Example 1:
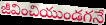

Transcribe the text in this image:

జీవించియుండగనే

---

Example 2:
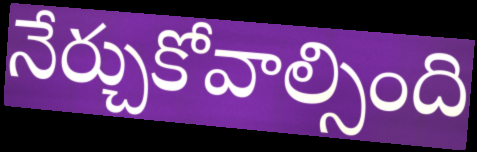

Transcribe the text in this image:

నేర్చుకోవాల్సింది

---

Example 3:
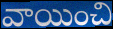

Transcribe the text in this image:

వాయించి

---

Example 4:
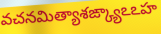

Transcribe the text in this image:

వచనమిత్యాశఙ్క్యాఽఽహ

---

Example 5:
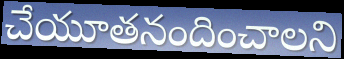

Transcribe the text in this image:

చేయూతనందించాలని